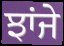
ਝਾਂਜੇ